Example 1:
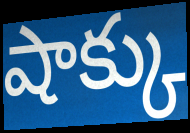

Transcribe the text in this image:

షాక్కు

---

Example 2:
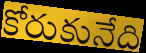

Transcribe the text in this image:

కోరుకునేది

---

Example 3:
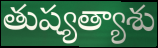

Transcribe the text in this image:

తుష్యత్యాశు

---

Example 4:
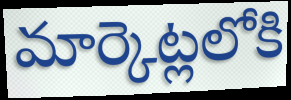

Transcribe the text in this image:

మార్కెట్లలోకి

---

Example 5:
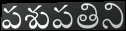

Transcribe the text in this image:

పశుపతిని